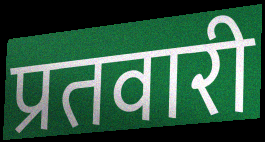
प्रतवारी